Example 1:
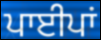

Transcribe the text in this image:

ਪਾਈਪਾਂ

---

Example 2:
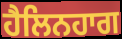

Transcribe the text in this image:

ਹੈਲਿਨਹਾਗ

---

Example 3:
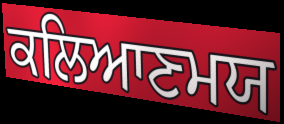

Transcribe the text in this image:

ਕਲਿਆਣਮਯ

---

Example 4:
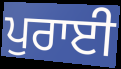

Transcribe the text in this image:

ਪੁਰਾਈ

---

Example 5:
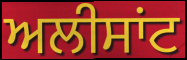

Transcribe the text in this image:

ਅਲੀਸਾਂਟ